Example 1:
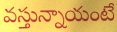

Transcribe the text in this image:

వస్తున్నాయంటే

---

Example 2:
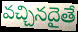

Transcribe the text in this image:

వచ్చినదైతే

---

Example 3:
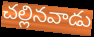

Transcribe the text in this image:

చల్లినవాడు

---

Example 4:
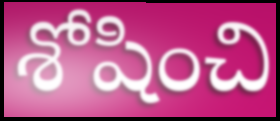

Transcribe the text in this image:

శోషించి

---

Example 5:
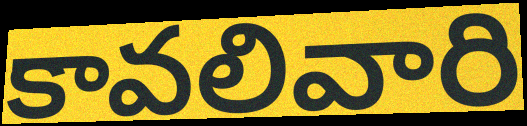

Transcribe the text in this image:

కావలివారి